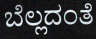
ಬೆಲ್ಲದಂತೆ